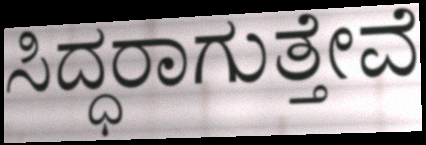
ಸಿದ್ಧರಾಗುತ್ತೇವೆ